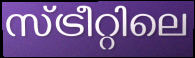
സ്ട്രീറ്റിലെ